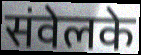
संवेलके